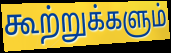
கூற்றுக்களும்